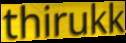
thirukk